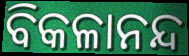
ବିକଳାନନ୍ଦ